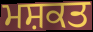
ਮਸ਼ਕਤ